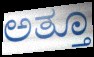
ಅತ್ತೂ